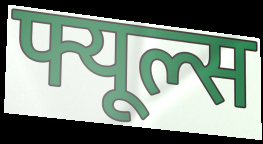
फ्यूल्स